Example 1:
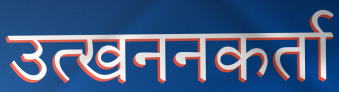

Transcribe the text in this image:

उत्खननकर्ता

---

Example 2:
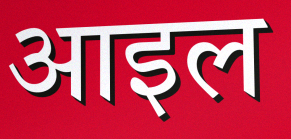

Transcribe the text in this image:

आइल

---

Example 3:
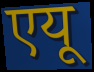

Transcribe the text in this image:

एयू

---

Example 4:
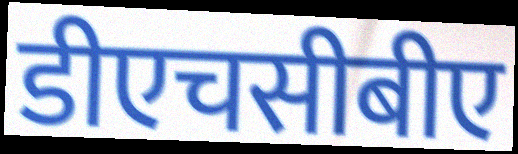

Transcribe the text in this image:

डीएचसीबीए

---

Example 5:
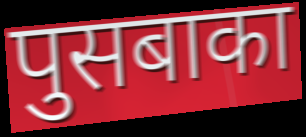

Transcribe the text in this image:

पुसबाका